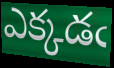
ఎక్కడఁ